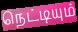
நெட்டியும்